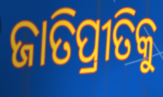
ଜାତିପ୍ରୀତିକୁ